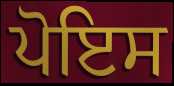
ਪੋਇਸ